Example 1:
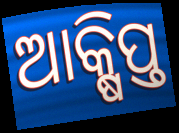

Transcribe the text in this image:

ଆକ୍ଷିପ୍ତ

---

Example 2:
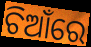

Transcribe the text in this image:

ଚିଆଁରେ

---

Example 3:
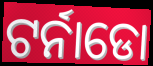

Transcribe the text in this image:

ଟର୍ନାଡୋ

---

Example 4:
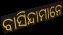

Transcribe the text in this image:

ବାସିନ୍ଦାମାନେ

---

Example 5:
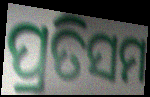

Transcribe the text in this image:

ପ୍ରତିସମ